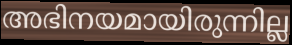
അഭിനയമായിരുന്നില്ല